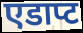
एडाप्ट